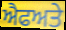
ਐਫਅਤੇ